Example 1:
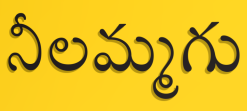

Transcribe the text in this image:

నీలమ్మగు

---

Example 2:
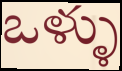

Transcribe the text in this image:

ఒళ్ళు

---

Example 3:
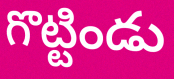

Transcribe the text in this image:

గొట్టిండు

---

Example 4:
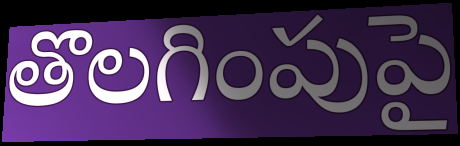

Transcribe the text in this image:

తొలగింపుపై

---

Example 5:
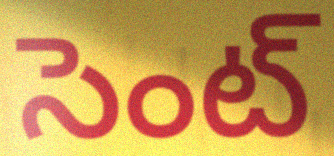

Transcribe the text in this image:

సెంట్